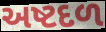
અષ્ટદળ